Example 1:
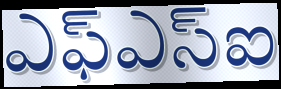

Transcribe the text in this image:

ఎఫ్ఎస్ఐ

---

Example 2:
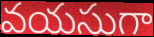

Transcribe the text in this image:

వయసుగా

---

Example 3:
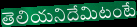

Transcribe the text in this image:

తెలియనిదేమిటంటే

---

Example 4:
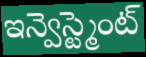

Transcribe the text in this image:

ఇన్వెస్ట్మెంట్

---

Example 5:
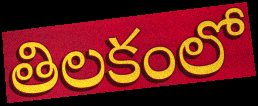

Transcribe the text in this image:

తిలకంలో